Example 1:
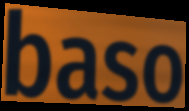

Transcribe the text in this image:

baso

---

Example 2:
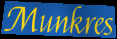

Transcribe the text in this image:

Munkres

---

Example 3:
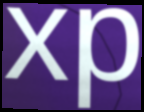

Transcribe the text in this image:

xp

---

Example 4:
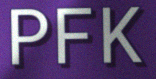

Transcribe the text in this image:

PFK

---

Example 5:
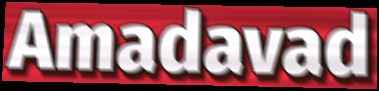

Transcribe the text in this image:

Amadavad